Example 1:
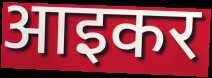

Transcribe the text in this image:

आइकर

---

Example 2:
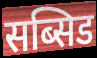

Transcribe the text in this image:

सब्सिड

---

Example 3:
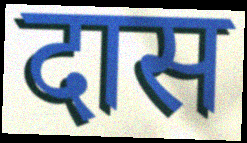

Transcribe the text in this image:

दास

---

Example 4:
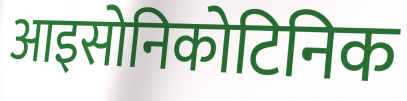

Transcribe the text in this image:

आइसोनिकोटिनिक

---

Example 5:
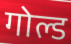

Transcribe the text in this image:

गोल्ड